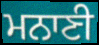
ਮਨਾਣੀ